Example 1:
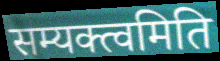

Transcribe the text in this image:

सम्यक्त्वमिति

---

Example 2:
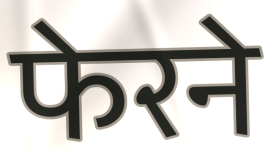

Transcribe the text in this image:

फेरने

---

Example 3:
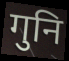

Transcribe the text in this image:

गुनि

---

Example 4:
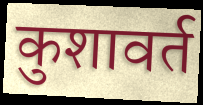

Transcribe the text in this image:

कुशावर्त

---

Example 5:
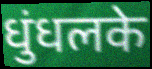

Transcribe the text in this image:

धुंधलके